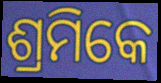
ଶ୍ରମିକେ